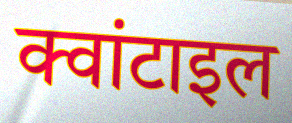
क्वांटाइल